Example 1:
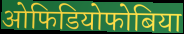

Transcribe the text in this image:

ओफिडियोफोबिया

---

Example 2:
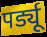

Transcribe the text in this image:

पर्ड्यू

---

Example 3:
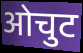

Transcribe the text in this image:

ओचुट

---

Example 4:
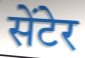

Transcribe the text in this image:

सेंटेर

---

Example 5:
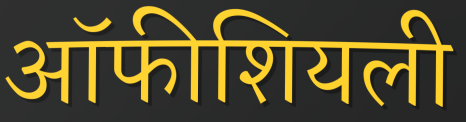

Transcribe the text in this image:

ऑफीशियली